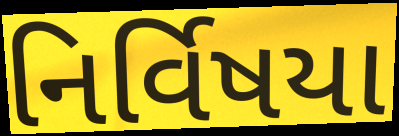
નિર્વિષયા